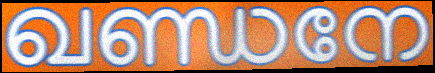
ഖണ്ഡനേ